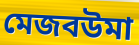
মেজবউমা